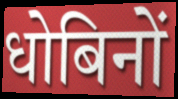
धोबिनों